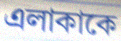
এলাকাকে